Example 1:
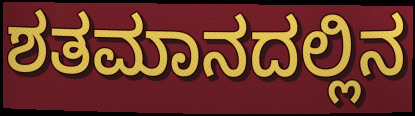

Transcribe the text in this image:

ಶತಮಾನದಲ್ಲಿನ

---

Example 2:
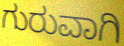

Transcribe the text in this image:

ಗುರುವಾಗಿ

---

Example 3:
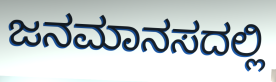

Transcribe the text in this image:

ಜನಮಾನಸದಲ್ಲಿ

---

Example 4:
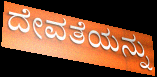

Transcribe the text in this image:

ದೇವತೆಯನ್ನು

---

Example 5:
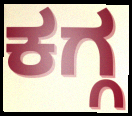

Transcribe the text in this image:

ಕಗ್ಗ